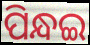
ପିନ୍ଧଇ